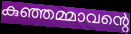
കുഞ്ഞമ്മാവന്റെ